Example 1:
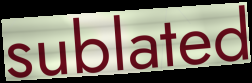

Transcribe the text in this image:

sublated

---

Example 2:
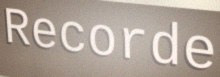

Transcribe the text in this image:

Recorde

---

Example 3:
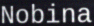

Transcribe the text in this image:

Nobina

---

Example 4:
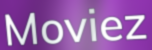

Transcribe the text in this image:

Moviez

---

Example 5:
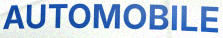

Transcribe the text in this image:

AUTOMOBILE